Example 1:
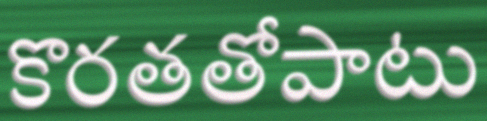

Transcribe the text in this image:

కొరతతోపాటు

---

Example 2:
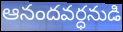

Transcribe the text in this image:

ఆనందవర్ధనుడి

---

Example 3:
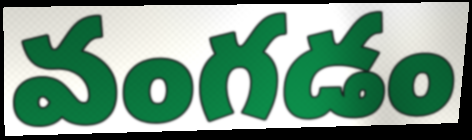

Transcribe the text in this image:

వంగడం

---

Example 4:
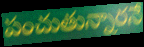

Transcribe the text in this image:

పంచుతున్నారనే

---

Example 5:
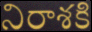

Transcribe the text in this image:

నిరాశకి